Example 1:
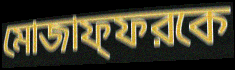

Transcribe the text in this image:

মোজাফ্ফরকে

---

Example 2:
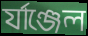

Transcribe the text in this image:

র্যাঞ্জেল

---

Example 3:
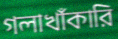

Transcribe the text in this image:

গলাখাঁকারি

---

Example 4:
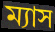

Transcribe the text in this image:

ম্যাস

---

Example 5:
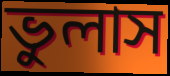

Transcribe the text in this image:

ভুলাস